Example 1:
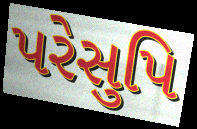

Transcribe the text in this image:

પરેસુપિ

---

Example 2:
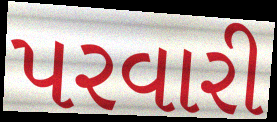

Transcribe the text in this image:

પરવારી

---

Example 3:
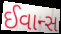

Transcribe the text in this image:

ઈવાન્સ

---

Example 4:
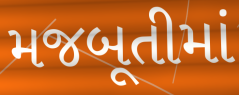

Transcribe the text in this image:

મજબૂતીમાં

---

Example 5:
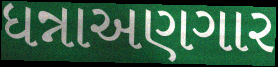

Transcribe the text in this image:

ધન્નાઅણગાર